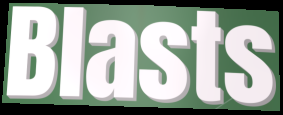
Blasts